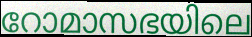
റോമാസഭയിലെ